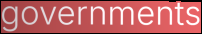
governments